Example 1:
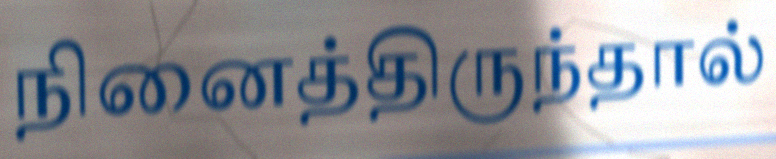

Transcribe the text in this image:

நினைத்திருந்தால்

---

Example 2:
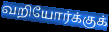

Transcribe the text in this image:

வறியோர்க்குக்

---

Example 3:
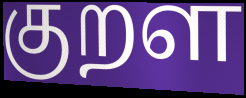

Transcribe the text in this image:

குறள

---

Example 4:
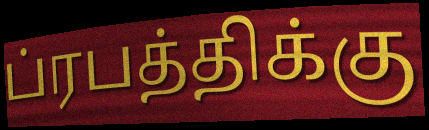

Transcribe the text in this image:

ப்ரபத்திக்கு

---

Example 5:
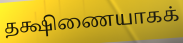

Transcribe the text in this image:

தக்ஷிணையாகக்